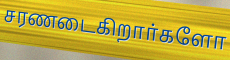
சரணடைகிறார்களோ